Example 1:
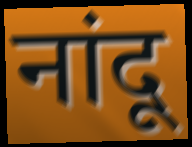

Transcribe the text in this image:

नांदू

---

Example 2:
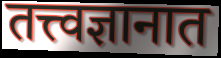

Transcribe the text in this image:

तत्त्वज्ञानात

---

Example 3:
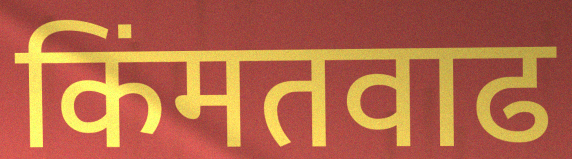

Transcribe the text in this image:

किंमतवाढ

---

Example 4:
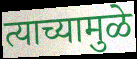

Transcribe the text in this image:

त्याच्यामुळे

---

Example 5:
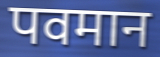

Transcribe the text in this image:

पवमान